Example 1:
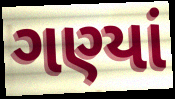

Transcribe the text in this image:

ગણ્યાં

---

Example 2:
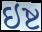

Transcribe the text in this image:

ઇષ્ટ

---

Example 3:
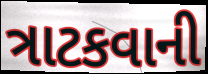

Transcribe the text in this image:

ત્રાટકવાની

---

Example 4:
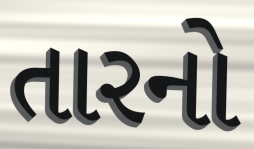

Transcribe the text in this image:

તારનો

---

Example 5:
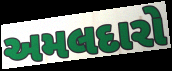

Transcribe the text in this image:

અમલદારો